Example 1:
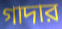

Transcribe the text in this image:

গাদার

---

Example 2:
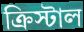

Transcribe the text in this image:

ক্রিস্টাল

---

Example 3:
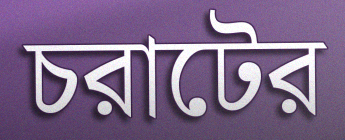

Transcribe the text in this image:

চরাটের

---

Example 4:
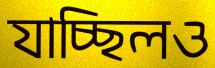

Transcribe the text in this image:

যাচ্ছিলও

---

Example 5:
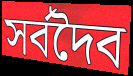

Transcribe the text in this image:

সর্বদৈব